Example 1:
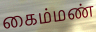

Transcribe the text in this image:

கைம்மண்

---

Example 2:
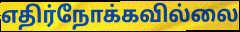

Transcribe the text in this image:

எதிர்நோக்கவில்லை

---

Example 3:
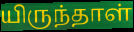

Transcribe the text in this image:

யிருந்தாள்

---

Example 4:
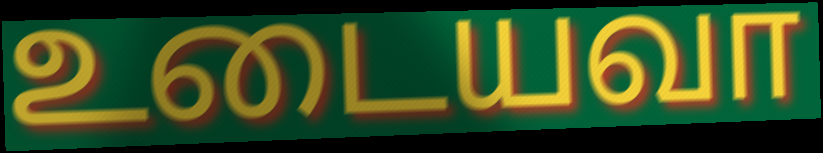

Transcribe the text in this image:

உடையவா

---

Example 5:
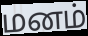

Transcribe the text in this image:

மனம்